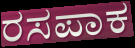
ರಸಪಾಕ